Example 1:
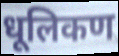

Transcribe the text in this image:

धूलिकण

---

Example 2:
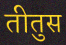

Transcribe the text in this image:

तीतुस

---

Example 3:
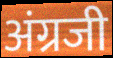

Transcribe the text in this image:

अंग्रजी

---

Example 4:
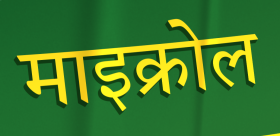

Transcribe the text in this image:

माइक्रोल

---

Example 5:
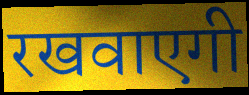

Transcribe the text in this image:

रखवाएगी